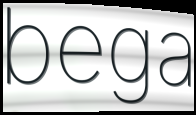
bega